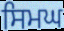
ਸਿਮਘ